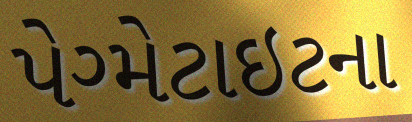
પેગ્મેટાઇટના